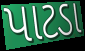
પાટડા